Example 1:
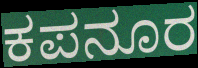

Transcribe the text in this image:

ಕಪನೂರ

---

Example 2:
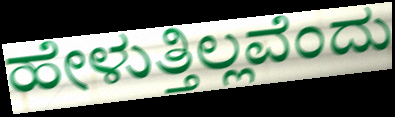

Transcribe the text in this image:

ಹೇಳುತ್ತಿಲ್ಲವೆಂದು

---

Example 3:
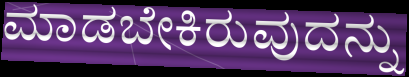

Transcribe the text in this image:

ಮಾಡಬೇಕಿರುವುದನ್ನು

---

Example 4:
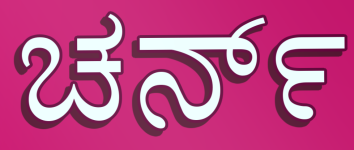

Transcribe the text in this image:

ಚರ್ನ್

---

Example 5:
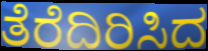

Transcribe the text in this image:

ತೆರೆದಿರಿಸಿದ